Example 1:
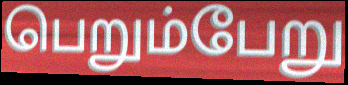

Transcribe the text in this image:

பெறும்பேறு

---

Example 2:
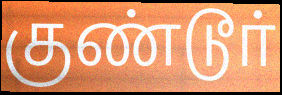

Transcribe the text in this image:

குண்டூர்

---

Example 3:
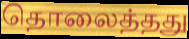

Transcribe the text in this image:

தொலைத்தது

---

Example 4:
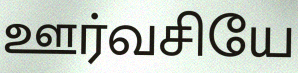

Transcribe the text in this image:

ஊர்வசியே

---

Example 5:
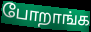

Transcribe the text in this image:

போறாங்க